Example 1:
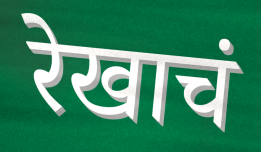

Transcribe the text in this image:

रेखाचं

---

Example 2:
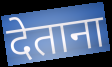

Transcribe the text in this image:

देताना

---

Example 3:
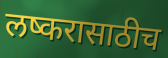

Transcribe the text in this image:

लष्करासाठीच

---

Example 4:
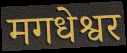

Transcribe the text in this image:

मगधेश्वर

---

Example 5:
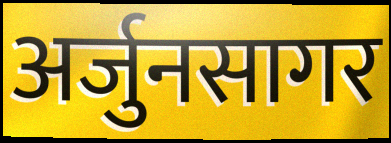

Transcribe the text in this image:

अर्जुनसागर